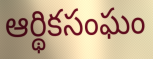
ఆర్థికసంఘం